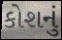
કોશનું